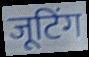
जूटिंग